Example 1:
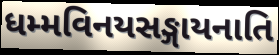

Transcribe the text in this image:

ધમ્મવિનયસઙ્ગાયનાતિ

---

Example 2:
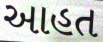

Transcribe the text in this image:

આહત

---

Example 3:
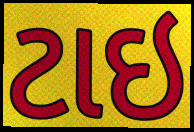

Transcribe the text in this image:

ટાઇ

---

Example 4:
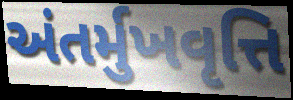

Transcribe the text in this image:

અંતર્મુખવૃત્તિ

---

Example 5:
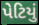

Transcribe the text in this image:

પેટિયું